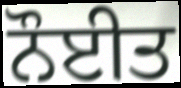
ਨੌਈਤ